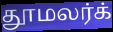
தூமலர்க்